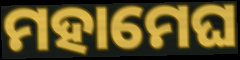
ମହାମେଘ